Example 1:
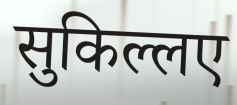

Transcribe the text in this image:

सुकिल्लए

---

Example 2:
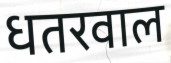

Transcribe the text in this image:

धतरवाल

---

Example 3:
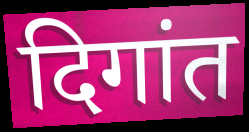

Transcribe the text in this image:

दिगांत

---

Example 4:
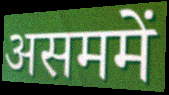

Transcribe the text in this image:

असममें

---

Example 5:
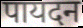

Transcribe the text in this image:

पायदन